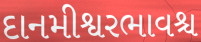
દાનમીશ્વરભાવશ્ચ